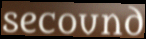
secound